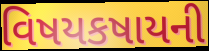
વિષયકષાયની